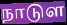
நாடுள